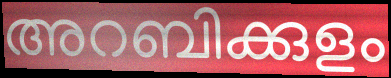
അറബിക്കുളം